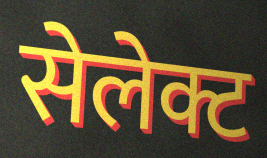
सेलेक्ट